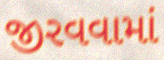
જીરવવામાં